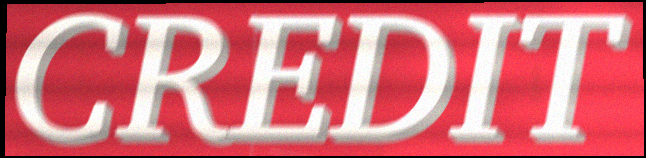
CREDIT